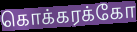
கொக்கரக்கோ